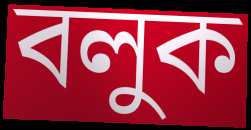
বলুক